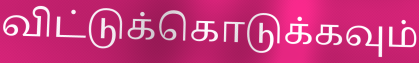
விட்டுக்கொடுக்கவும்